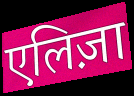
एलिज़ा